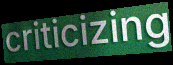
criticizing